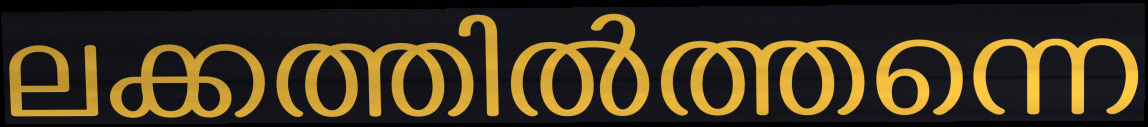
ലക്കത്തിൽത്തന്നെ